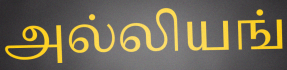
அல்லியங்